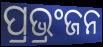
ପ୍ରଭ୍ରଂଜନ